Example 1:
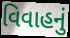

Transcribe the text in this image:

વિવાહનું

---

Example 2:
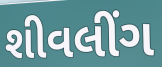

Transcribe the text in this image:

શીવલીંગ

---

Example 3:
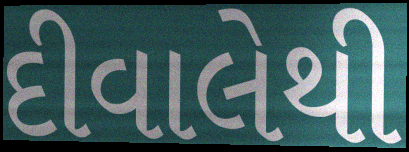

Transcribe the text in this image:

દીવાલેથી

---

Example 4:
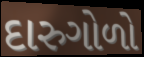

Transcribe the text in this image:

દારુગોળો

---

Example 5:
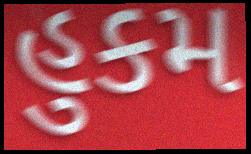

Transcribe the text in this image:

હુકમ